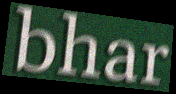
bhar